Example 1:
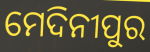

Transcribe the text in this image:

ମେଦିନୀପୁର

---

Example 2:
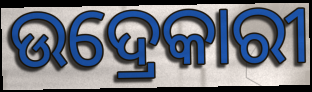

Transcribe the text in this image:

ଉଦ୍ରେକାରୀ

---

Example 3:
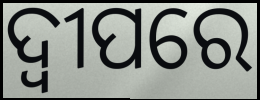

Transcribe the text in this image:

ଦ୍ୱୀପରେ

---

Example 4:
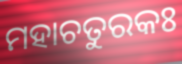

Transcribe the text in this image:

ମହାଚତୁରକଃ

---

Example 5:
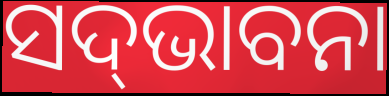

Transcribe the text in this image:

ସଦ୍‌ଭାବନା